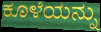
ಕೂಳೆಯನ್ನು